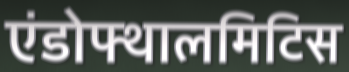
एंडोफ्थालमिटिस